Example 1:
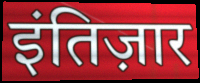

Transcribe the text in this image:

इंतिज़ार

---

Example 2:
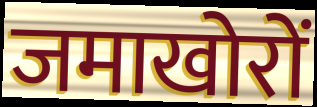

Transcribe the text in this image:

जमाखोरों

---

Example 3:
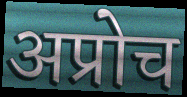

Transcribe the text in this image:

अप्रोच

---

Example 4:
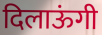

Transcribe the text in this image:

दिलाऊंगी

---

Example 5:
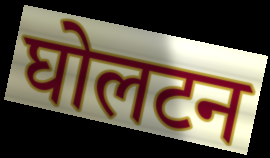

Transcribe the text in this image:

घोलटन